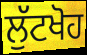
ਲੁੱਟਖੋਹ